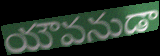
యౌవనుడా